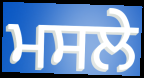
ਮਸਲੇ